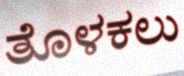
ತೊಳಕಲು